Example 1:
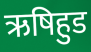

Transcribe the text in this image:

ऋषिहुड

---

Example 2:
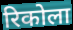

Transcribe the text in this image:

रिकोला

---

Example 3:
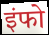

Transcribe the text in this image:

इंफो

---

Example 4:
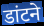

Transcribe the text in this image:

डांटने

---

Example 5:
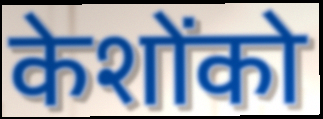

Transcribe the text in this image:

केशोंको